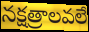
నక్షత్రాలవలే